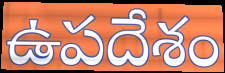
ఉపదేశం